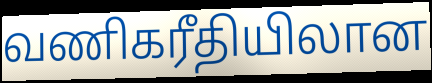
வணிகரீதியிலான